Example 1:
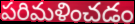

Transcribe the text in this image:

పరిమళించడం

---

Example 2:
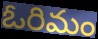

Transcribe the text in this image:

ఓరిమం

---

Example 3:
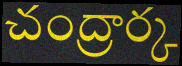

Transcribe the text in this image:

చంద్రార్క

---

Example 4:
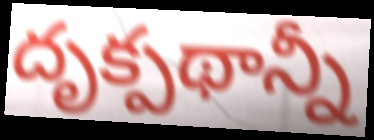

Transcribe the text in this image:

దృక్పథాన్నీ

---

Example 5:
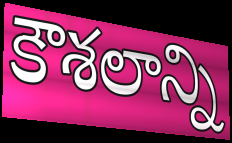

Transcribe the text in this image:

కౌశలాన్ని